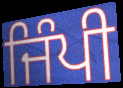
ਜਿੰਪੀ